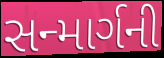
સન્માર્ગની